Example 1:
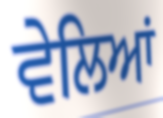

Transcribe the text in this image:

ਵੇਲਿਆਂ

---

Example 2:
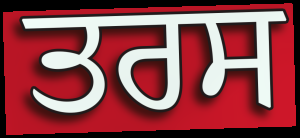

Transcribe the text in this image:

ਤਰਸ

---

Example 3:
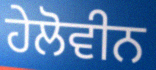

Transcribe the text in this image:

ਹੇਲੋਵੀਨ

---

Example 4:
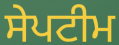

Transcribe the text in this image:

ਸੇਪਟੀਮ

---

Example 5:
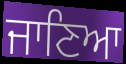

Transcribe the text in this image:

ਜਾਣਿਆ